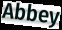
Abbey